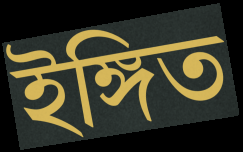
ইঙ্গিত